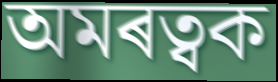
অমৰত্বক